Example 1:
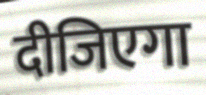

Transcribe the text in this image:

दीजिएगा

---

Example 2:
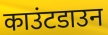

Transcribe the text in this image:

काउंटडाउन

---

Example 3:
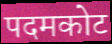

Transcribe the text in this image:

पदमकोट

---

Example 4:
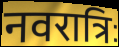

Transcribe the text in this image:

नवरात्रिः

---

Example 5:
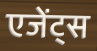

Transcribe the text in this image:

एजेंट्स